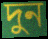
দুন